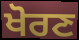
ਖੋਰਣ